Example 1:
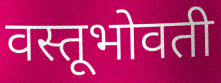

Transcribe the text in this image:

वस्तूभोवती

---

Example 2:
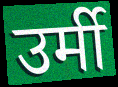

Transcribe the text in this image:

उर्मी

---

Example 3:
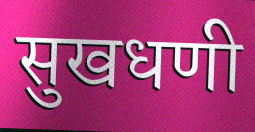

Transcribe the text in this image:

सुखधणी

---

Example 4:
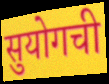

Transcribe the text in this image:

सुयोगची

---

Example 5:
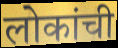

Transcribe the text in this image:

लोकांची